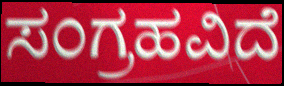
ಸಂಗ್ರಹವಿದೆ